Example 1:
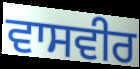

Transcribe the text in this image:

ਵਾਸਵੀਰ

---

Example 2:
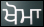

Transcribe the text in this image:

ਖੋਮਾ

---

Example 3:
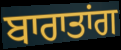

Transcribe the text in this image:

ਬਾਰਾਤਾਂਗ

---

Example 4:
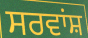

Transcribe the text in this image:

ਸਰਵਾਂਸ਼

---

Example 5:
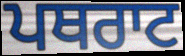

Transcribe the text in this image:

ਪਥਰਾਟ